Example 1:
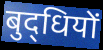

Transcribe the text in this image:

बुद्धियों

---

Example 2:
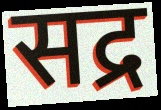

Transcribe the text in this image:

सद्र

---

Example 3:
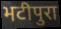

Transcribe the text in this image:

भटीपुरा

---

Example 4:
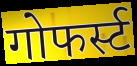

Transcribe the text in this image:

गोफर्स्ट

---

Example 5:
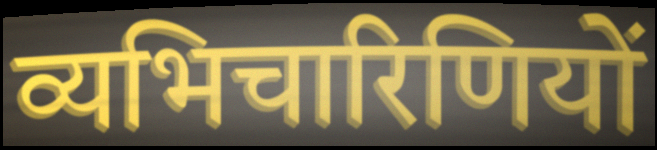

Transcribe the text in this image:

व्यभिचारिणियों